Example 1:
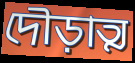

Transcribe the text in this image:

দৌড়াত্ম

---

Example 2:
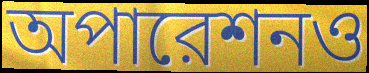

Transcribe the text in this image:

অপারেশনও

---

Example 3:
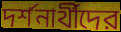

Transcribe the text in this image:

দর্শনার্থীদের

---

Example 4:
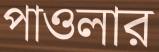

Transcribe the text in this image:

পাওলার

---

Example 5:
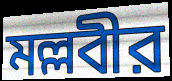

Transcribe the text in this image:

মল্লবীর